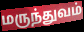
மருந்துவம்